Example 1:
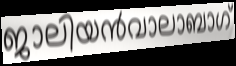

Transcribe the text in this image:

ജാലിയൻവാലാബാഗ്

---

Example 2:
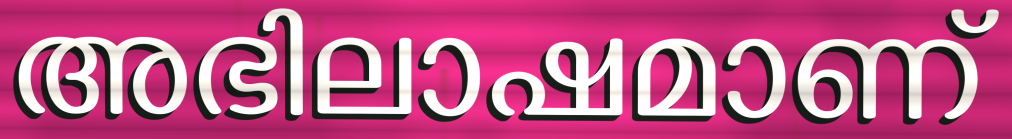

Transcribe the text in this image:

അഭിലാഷമാണ്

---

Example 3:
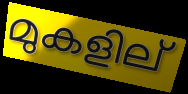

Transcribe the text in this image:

മുകളില്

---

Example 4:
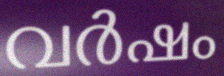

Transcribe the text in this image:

വർഷം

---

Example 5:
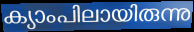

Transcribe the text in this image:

ക്യാംപിലായിരുന്നു